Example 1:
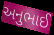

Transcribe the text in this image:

અનુભાઈ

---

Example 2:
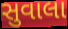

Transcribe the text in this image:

સુવાલા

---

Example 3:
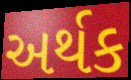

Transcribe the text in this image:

અર્થક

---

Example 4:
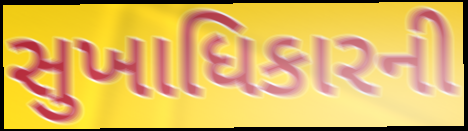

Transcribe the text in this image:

સુખાધિકારની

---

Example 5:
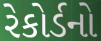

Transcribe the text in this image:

રેકોર્ડનો